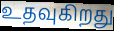
உதவுகிறது